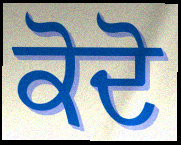
ਕੋਦੋ